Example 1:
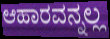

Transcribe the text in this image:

ಆಹಾರವನ್ನಲ್ಲ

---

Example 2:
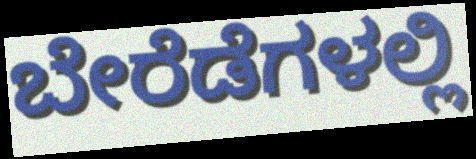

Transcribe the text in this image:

ಬೇರೆಡೆಗಳಲ್ಲಿ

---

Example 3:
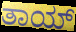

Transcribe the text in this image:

ತಾಯ್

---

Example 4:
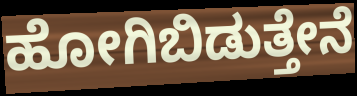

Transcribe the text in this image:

ಹೋಗಿಬಿಡುತ್ತೇನೆ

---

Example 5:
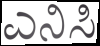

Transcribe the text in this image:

ಎನಿಸಿ